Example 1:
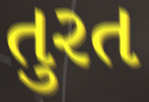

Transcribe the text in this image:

તુરત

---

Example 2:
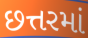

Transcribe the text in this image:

છત્તરમાં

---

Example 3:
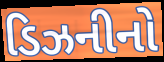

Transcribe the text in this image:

ડિઝનીનો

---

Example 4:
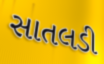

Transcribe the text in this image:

સાતલડી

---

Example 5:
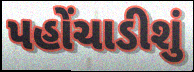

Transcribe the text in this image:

પહોંચાડીશું